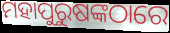
ମହାପୁରୁଷଙ୍କଠାରେ